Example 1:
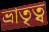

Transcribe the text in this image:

ভ্রাতৃত্ব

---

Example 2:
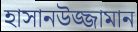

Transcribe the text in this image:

হাসানউজ্জামান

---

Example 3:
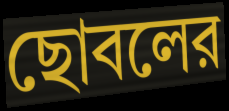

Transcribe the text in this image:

ছোবলের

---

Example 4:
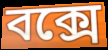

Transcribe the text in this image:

বক্সে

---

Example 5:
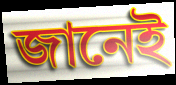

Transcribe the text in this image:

জানেই